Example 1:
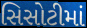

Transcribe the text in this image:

સિસોટીમાં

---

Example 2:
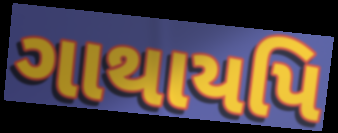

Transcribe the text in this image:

ગાથાયપિ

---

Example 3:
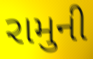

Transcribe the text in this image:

રામુની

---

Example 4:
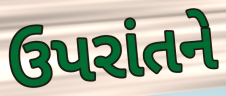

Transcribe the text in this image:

ઉપરાંતને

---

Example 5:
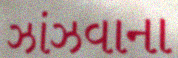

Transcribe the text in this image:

ઝાંઝવાના